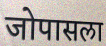
जोपासला